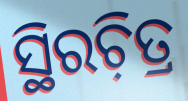
ସ୍ଥିରଚ଼ିତ୍ର